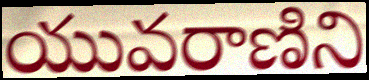
యువరాణిని